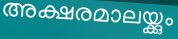
അക്ഷരമാലയ്ക്കും